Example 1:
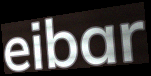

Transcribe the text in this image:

eibar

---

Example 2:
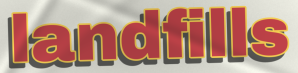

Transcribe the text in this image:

landfills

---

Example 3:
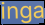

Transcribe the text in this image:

inga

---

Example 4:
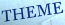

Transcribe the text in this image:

THEME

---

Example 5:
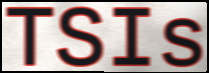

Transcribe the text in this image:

TSIs